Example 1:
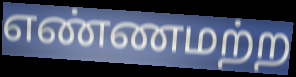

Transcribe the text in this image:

எண்ணமற்ற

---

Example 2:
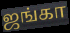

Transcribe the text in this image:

ஜங்கா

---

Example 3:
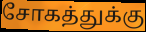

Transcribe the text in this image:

சோகத்துக்கு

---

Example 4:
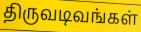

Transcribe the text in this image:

திருவடிவங்கள்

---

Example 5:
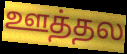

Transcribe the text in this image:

ஊத்தல